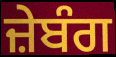
ਜ਼ੇਬੰਗ